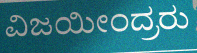
ವಿಜಯೀಂದ್ರರು